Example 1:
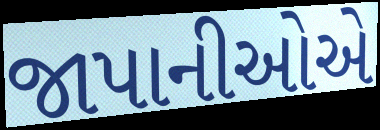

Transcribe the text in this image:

જાપાનીઓએ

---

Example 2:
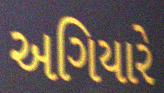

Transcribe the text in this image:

અગિયારે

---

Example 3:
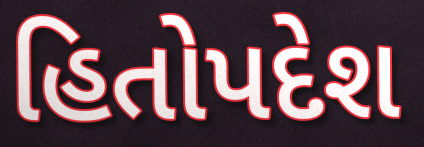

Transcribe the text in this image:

હિતોપદેશ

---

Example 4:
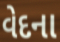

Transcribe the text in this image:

વેદના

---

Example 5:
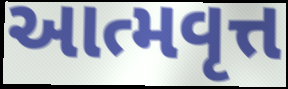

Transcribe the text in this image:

આત્મવૃત્ત